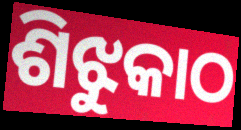
ଶିଝୁକାଠ